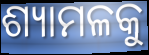
ଶ୍ୟାମଳକୁ